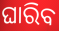
ଘାରିବ